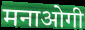
मनाओगी